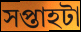
সপ্তাহটা